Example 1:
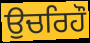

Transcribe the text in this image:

ਉਚਰਿਹੌ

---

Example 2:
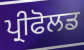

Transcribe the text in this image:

ਪ੍ਰੀਫੋਲਡ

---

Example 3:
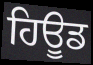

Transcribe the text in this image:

ਹਿਊਡ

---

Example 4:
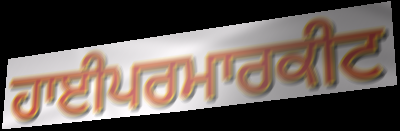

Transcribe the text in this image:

ਹਾਈਪਰਮਾਰਕੀਟ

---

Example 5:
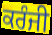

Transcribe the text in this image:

ਕਰੰਜੀ